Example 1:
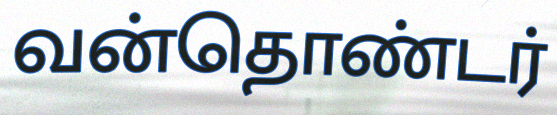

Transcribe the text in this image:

வன்தொண்டர்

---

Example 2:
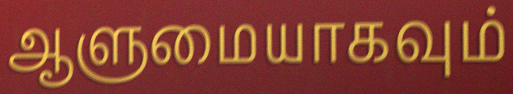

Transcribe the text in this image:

ஆளுமையாகவும்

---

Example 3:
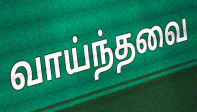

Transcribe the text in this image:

வாய்ந்தவை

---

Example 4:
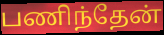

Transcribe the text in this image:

பணிந்தேன்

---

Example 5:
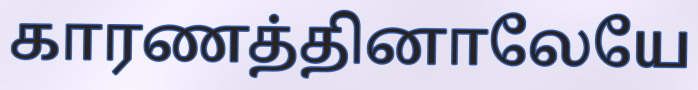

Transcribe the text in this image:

காரணத்தினாலேயே